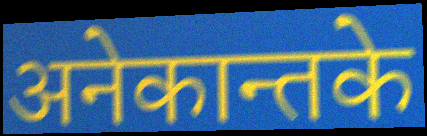
अनेकान्तके